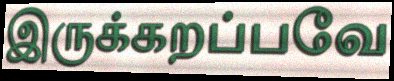
இருக்கறப்பவே